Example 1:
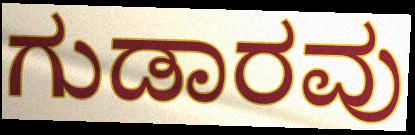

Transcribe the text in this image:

ಗುಡಾರವು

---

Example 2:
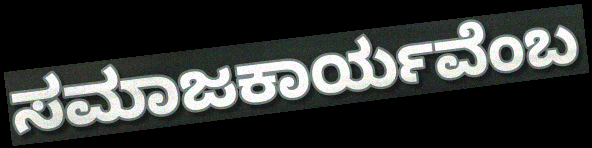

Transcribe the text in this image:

ಸಮಾಜಕಾರ್ಯವೆಂಬ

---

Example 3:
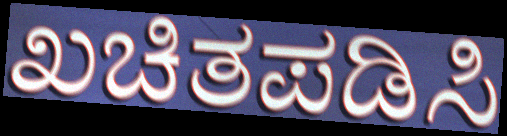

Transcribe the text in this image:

ಖಚಿತಪಡಿಸಿ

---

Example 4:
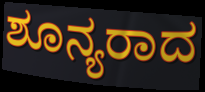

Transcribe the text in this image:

ಶೂನ್ಯರಾದ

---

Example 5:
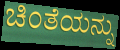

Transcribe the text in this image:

ಚಿಂತೆಯನ್ನು